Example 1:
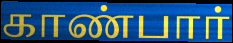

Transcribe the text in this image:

காண்பார்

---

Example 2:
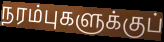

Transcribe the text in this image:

நரம்புகளுக்குப்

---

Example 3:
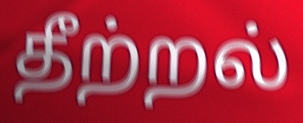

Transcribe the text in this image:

தீற்றல்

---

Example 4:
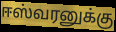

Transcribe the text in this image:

ஈஸ்வரனுக்கு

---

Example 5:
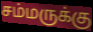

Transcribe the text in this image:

சம்மருக்கு